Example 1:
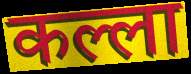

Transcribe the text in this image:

कल्ला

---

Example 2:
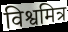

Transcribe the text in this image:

विश्वमित्र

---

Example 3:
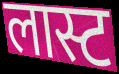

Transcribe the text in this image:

लास्ट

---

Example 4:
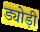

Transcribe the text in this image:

ड्योड़ी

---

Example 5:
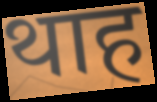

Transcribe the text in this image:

थाह